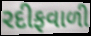
રદીફવાળી